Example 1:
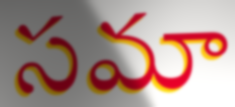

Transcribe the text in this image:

సమా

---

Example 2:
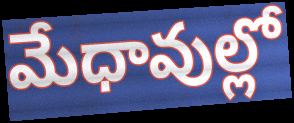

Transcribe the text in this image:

మేధావుల్లో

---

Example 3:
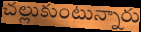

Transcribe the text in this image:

చల్లుకుంటున్నారు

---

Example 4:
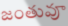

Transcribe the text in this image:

జంతువూ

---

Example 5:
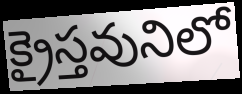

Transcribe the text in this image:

క్రైస్తవునిలో